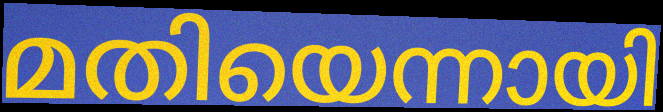
മതിയെന്നായി